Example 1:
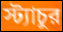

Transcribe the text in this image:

স্ট্যাচুর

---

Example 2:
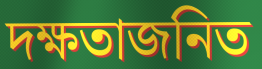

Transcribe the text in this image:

দক্ষতাজনিত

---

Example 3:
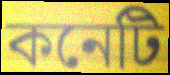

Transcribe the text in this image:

কনেটি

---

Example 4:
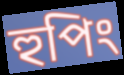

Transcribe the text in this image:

হুপিং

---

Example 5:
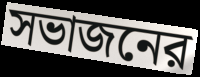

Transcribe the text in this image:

সভাজনের